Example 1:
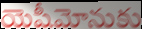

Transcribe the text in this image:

యెషీమోనుకు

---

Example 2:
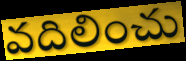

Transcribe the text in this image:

వదిలించు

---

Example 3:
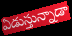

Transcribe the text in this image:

ఏడుస్తున్నాడా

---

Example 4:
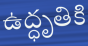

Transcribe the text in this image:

ఉద్ధృతికి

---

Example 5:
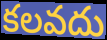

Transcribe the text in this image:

కలవదు